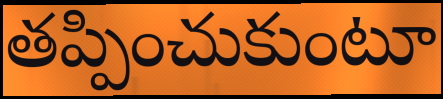
తప్పించుకుంటూ